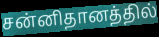
சன்னிதானத்தில்